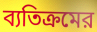
ব্যতিক্রমের